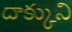
దాక్కుని